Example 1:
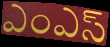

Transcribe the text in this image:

ఎంఎస్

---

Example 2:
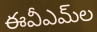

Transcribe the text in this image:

ఈవీఎమ్‌ల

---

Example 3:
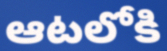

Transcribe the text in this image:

ఆటలోకి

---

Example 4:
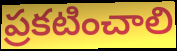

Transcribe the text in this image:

ప్రకటించాలి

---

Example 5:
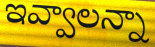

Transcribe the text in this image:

ఇవ్వాలన్నా